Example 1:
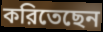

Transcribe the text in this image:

করিতেছেন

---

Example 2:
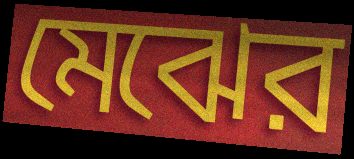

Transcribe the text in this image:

মেঝের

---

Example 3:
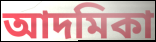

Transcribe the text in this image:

আদমিকা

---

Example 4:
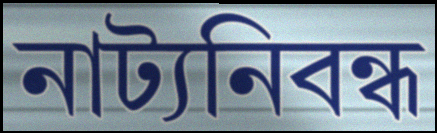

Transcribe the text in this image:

নাট্যনিবন্ধ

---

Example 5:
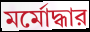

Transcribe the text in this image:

মর্মোদ্ধার